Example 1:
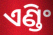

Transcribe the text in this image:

ଏଣ୍ଡିଂ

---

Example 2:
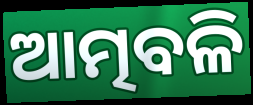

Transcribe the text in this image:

ଆତ୍ମବଳି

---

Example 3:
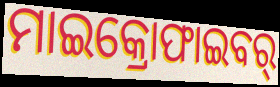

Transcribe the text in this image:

ମାଇକ୍ରୋଫାଇବର୍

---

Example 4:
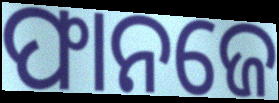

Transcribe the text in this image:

ଫାନଜେ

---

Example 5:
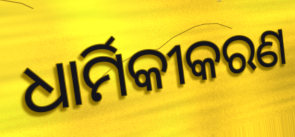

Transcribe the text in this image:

ଧାର୍ମିକୀକରଣ